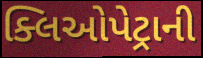
ક્લિઓપેટ્રાની